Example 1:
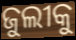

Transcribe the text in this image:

ଜୁଲୀକୁ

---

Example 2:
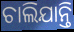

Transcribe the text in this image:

ଚାଲିଯାନ୍ତି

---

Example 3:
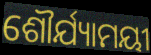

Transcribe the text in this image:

ଶୌର୍ଯ୍ୟାମୟୀ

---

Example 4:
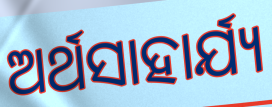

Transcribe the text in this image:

ଅର୍ଥସାହାର୍ଯ୍ୟ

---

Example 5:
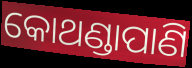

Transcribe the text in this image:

କୋଥଣ୍ଡାପାଣି